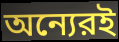
অন্যেরই